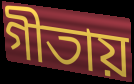
গীতায়